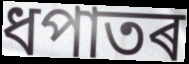
ধপাতৰ